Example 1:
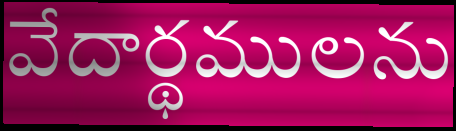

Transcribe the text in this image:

వేదార్థములను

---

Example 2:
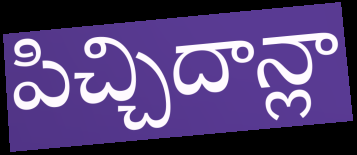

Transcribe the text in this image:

పిచ్చిదాన్లా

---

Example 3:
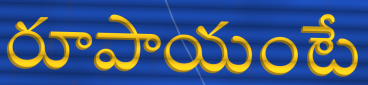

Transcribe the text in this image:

రూపాయంటే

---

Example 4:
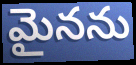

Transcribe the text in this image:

మైనను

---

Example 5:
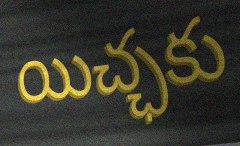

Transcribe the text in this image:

యిచ్ఛకు